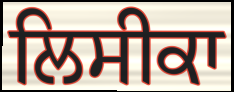
ਲਿਸੀਕਾ